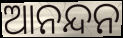
ଆନନ୍ଦନ